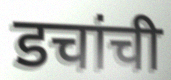
डचांची